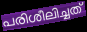
പരിശീലിച്ചത്